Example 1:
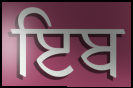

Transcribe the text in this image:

ਇਬ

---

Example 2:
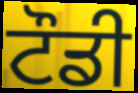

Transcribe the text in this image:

ਟੌਡੀ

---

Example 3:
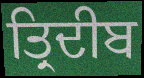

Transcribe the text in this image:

ਤ੍ਰਿਦੀਬ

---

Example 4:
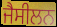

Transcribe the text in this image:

ਜੈਸੀਲਨ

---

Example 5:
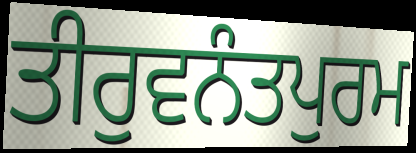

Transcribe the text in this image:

ਤੀਰੁਵਨੰਤਪੁਰਮ